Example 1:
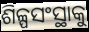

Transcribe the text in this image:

ଶିଳ୍ପସଂସ୍ଥାକୁ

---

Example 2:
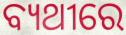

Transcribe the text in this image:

ବ୍ୟଥୀରେ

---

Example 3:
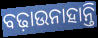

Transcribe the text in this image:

ବଢ଼ାଉନାହାନ୍ତି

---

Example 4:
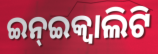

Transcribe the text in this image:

ଇନ୍ଇକ୍ଵାଲିଟି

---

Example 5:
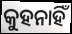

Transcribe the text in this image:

କୁହନାହିଁ